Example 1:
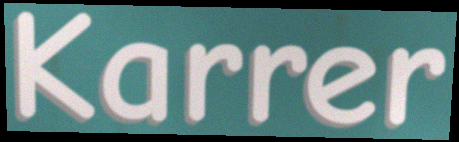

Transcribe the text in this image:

Karrer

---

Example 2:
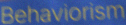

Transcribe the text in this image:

Behaviorism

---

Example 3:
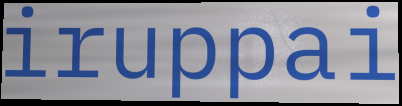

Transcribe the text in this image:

iruppai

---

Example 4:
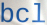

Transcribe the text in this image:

bcl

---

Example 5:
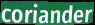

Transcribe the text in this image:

coriander